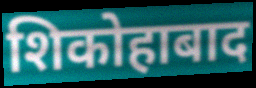
शिकोहाबाद